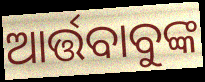
ଆର୍ତ୍ତବାବୁଙ୍କ